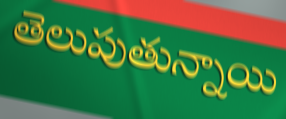
తెలుపుతున్నాయి